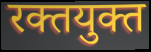
रक्तयुक्त